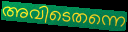
അവിടെതന്നെ